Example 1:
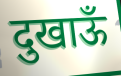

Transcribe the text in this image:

दुखाऊँ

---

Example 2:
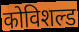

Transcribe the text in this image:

कोविशल्ड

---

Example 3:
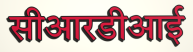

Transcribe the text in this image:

सीआरडीआई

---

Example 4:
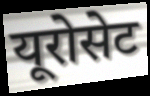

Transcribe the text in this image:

यूरोसेट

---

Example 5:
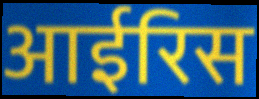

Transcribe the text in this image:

आईरिस